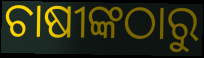
ଚାଷୀଙ୍କଠାରୁ